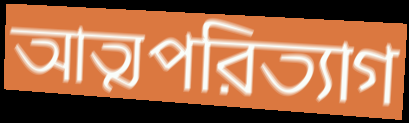
আত্মপরিত্যাগ